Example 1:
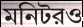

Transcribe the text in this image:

মনিটরও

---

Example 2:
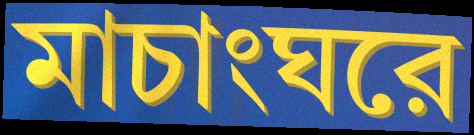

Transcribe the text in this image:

মাচাংঘরে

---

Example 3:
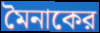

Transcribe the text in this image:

মৈনাকের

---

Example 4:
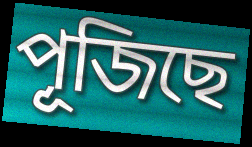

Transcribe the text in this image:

পূজিছে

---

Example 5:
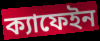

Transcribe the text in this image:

ক্যাফেইন